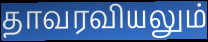
தாவரவியலும்